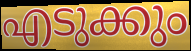
എടുക്കും